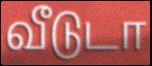
வீடுடா